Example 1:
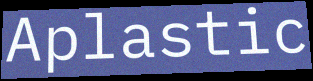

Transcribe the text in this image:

Aplastic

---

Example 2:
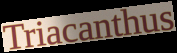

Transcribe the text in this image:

Triacanthus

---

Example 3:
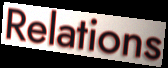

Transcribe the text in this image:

Relations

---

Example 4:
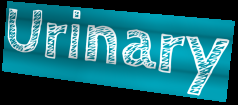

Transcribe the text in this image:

Urinary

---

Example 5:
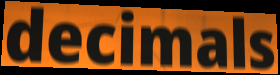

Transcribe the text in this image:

decimals